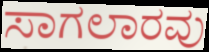
ಸಾಗಲಾರವು